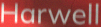
Harwell